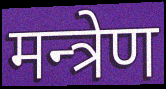
मन्त्रेण